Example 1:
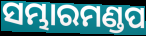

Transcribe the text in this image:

ସମ୍ଭାରମଣ୍ଡପ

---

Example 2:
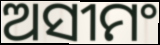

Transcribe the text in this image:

ଅସୀମଂ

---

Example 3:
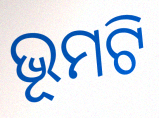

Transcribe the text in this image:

ଭୂମଟି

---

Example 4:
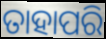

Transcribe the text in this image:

ତାହାପରି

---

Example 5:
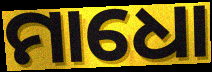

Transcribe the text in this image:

ମାଧୋ